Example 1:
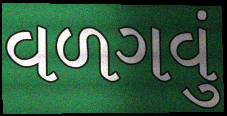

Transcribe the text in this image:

વળગવું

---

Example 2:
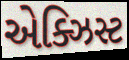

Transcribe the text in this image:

એક્ઝિસ્ટ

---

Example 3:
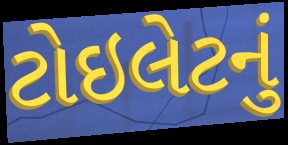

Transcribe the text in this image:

ટોઇલેટનું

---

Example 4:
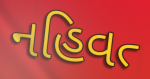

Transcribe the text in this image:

નહિવત્‍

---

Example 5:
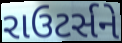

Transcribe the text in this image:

રાઉટર્સને